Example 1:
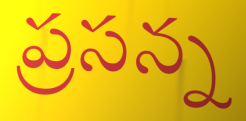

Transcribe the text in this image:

ప్రసన్న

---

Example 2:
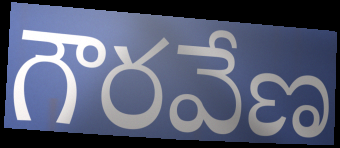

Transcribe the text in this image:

గౌరవేణ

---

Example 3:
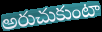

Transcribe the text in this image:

అరుచుకుంటా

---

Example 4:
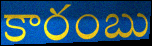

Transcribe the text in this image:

కారంబు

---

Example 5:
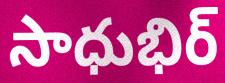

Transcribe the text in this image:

సాధుభిర్